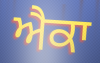
ਐਕਾ